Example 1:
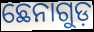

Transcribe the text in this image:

ଛେନାଗୁଡ଼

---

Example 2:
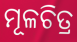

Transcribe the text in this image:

ମୂଳଚିତ୍ର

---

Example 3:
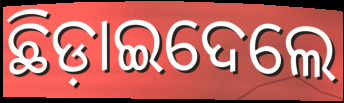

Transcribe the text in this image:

ଛିଡ଼ାଇଦେଲେ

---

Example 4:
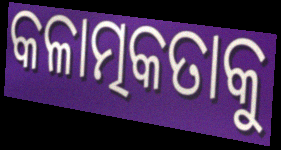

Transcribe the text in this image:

କଳାତ୍ମକତାକୁ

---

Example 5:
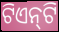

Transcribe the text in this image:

ଟିଏନ୍‌ଟି